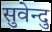
सुवेन्दु